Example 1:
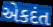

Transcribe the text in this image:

એકદંત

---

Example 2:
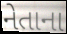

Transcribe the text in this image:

નેતાના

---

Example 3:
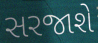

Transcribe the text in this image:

સરજાશે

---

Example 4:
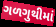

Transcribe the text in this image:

ગળગુથીમાં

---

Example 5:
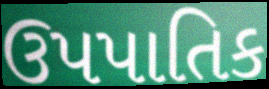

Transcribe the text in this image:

ઉપપાતિક